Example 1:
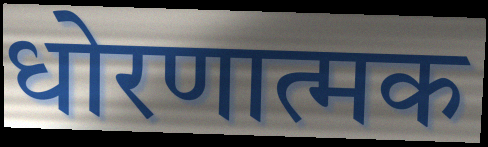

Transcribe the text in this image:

धोरणात्मक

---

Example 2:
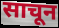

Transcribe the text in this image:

साचून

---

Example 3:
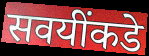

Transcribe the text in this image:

सवयींकडे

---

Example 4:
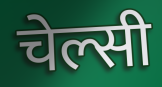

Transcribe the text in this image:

चेल्सी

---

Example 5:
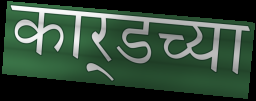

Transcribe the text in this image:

कार्डच्या